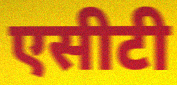
एसीटी